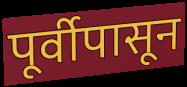
पूर्वीपासून